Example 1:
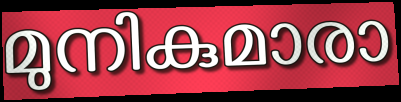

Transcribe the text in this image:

മുനികുമാരാ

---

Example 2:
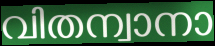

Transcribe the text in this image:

വിതന്വാനാ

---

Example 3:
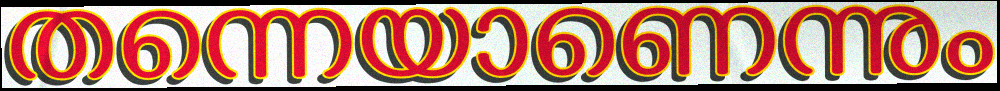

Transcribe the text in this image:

തന്നെയാണെന്നും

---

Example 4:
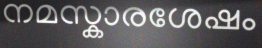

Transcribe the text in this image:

നമസ്കാരശേഷം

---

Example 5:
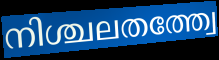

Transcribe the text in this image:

നിശ്ചലതത്ത്വേ